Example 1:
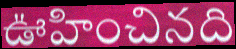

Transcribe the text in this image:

ఊహించినది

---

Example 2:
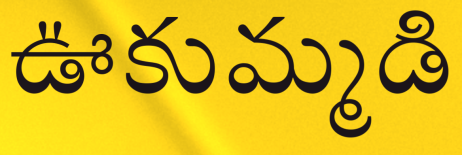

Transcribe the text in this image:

ఊకుమ్మడి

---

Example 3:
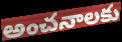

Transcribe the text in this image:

అంచనాలకు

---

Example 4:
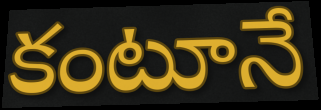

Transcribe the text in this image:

కంటూనే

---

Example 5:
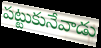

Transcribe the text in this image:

పట్టుకునేవాడు